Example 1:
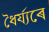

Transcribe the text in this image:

ধৈৰ্য্যৰে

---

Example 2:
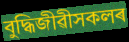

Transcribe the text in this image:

বুদ্ধিজীৱীসকলৰ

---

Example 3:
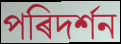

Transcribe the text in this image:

পৰিদৰ্শন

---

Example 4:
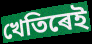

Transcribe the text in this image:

খেতিৰেই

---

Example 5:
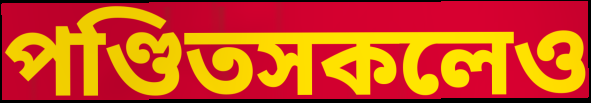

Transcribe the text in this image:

পণ্ডিতসকলেও